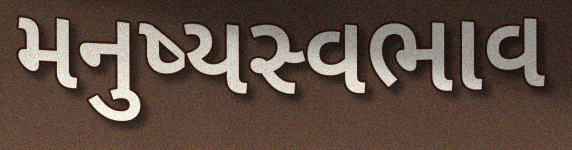
મનુષ્યસ્વભાવ